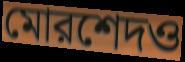
মোরশেদও